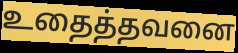
உதைத்தவனை